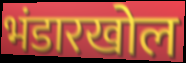
भंडारखोल